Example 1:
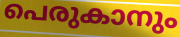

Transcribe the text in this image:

പെരുകാനും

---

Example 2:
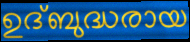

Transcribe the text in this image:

ഉദ്ബുദ്ധരായ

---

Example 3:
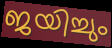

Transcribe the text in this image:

ജയിച്ചും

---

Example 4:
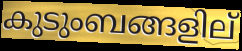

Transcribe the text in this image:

കുടുംബങ്ങളില്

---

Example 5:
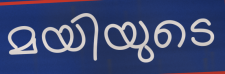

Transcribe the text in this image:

മയിയുടെ